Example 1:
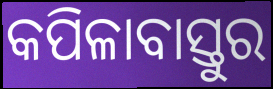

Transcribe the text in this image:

କପିଳାବାସ୍ତୁର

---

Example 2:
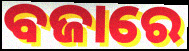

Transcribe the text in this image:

ବଜାରେ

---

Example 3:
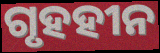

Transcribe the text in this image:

ଗୃହହୀନ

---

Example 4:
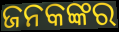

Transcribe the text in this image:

ଜନକଙ୍କର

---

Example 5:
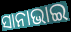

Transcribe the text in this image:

ସାନାଭାଇ